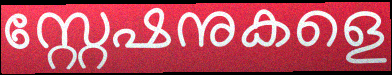
സ്റ്റേഷനുകളെ